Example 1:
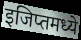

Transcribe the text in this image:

इजिप्तमध्ये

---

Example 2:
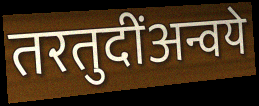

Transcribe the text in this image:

तरतुदींअन्वये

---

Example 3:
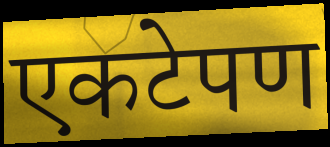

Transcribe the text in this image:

एकटेपण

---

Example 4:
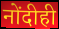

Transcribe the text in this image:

नोंदीही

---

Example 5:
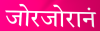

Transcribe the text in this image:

जोरजोरानं